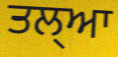
ਤਲ੍ਆ